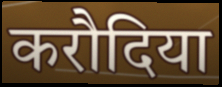
करौदिया